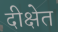
दीक्षेत